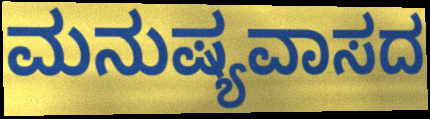
ಮನುಷ್ಯವಾಸದ